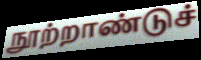
நூற்றாண்டுச்